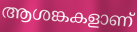
ആശങ്കകളാണ്